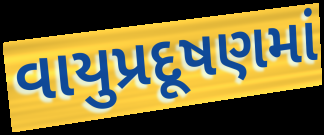
વાયુપ્રદૂષણમાં